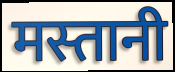
मस्‍तानी